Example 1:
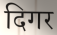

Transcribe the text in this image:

दिगर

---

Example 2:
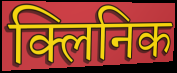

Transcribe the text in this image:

क्लिनिक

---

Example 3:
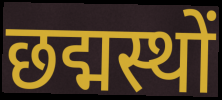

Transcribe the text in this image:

छद्मस्थों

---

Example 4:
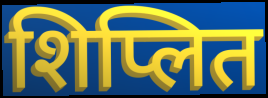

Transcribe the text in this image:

शिप्लित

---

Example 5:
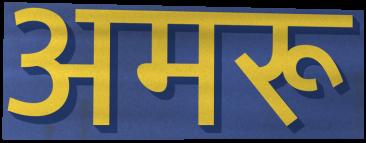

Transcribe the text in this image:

अमरू